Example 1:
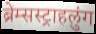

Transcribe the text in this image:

ब्रेम्सस्ट्राहलुंग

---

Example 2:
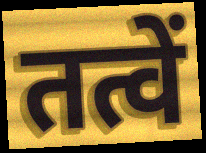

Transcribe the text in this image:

तत्वें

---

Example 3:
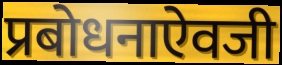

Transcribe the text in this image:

प्रबोधनाऐवजी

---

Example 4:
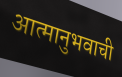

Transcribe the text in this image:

आत्मानुभवाची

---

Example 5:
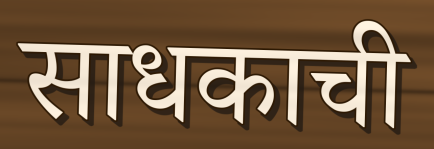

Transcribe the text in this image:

साधकाची